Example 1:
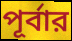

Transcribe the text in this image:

পূর্বার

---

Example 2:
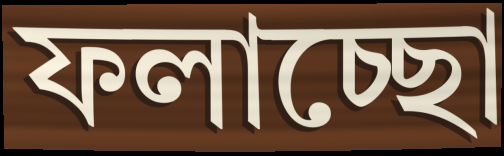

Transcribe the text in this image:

ফলাচ্ছো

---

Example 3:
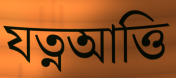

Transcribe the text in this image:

যত্নআত্তি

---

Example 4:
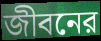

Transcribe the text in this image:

জীবনের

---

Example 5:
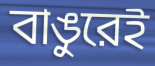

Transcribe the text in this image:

বাঙুরেই